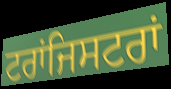
ਟਰਾਂਜਿਸਟਰਾਂ